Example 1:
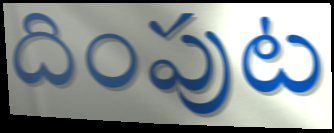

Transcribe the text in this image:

దింపుట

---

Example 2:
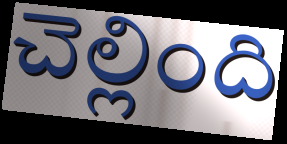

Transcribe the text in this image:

చెల్లింది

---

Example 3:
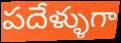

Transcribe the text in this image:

పదేళ్ళుగా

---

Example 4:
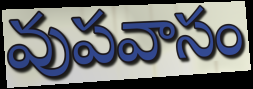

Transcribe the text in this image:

వుపవాసం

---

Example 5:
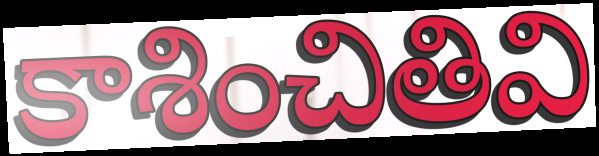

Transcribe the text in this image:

కాశించితివి